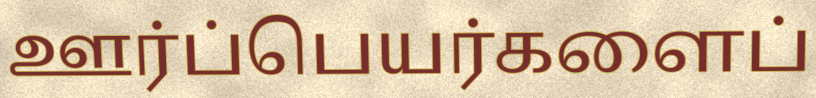
ஊர்ப்பெயர்களைப்